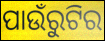
ପାଉଁରୁଟିର